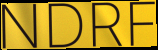
NDRF